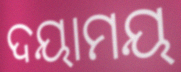
ଦୟାମୟ